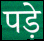
पड़े